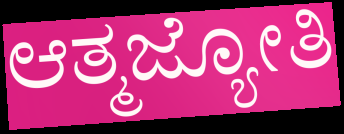
ಆತ್ಮಜ್ಯೋತಿ